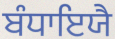
ਬੰਧਾਇਯੈ